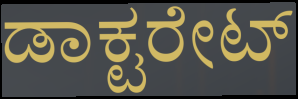
ಡಾಕ್ಟರೇಟ್